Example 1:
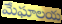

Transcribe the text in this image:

మేఘాలయ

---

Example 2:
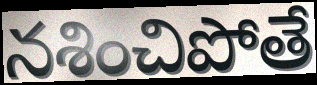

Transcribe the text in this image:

నశించిపోతే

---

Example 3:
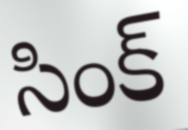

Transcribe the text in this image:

సింక్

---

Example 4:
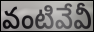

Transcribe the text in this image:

వంటివేవీ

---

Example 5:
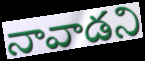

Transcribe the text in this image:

నావాడని